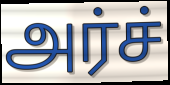
அர்ச்